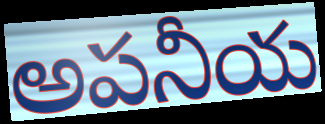
అపనీయ